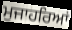
ਮੁਜਾਹਰਿਆਂ